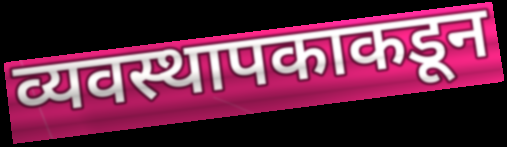
व्यवस्थापकाकडून